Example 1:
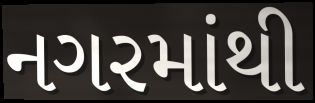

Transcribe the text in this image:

નગરમાંથી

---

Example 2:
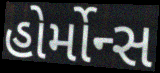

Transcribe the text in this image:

હોર્મોન્સ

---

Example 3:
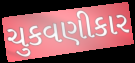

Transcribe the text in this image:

ચુકવણીકાર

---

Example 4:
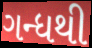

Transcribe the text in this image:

ગન્ધથી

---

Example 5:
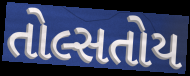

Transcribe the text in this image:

તોલ્સતોય